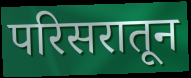
परिसरातून